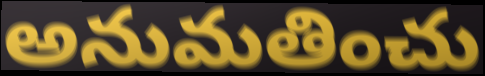
అనుమతించు